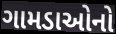
ગામડાઓનો